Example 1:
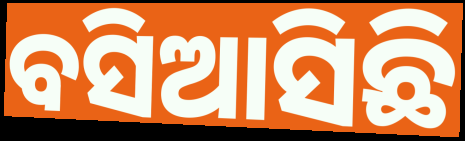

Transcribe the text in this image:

ବସିଆସିଛି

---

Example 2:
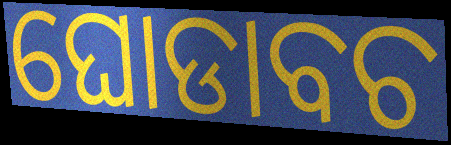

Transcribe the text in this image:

ଘୋଡାବଚ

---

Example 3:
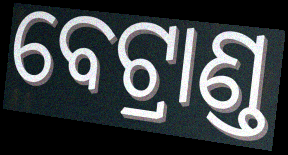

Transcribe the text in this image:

ବେଟ୍ରାଣ୍ଡ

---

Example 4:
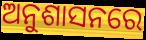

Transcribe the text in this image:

ଅନୁଶାସନରେ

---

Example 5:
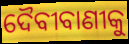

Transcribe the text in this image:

ଦୈବୀବାଣୀକୁ